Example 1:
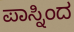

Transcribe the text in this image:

ಪಾಸ್ನಿಂದ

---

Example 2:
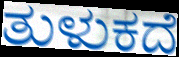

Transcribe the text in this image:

ತುಳುಕದೆ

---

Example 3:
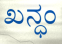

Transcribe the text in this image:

ಖನ್ಧಂ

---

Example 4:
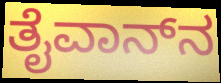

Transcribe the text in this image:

ತೈವಾನ್‌ನ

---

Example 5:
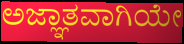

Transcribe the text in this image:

ಅಜ್ಞಾತವಾಗಿಯೇ